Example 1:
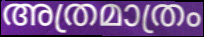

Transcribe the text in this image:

അത്രമാത്രം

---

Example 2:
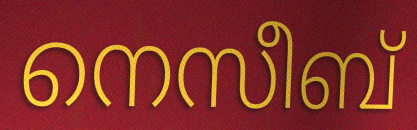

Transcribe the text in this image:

നെസീബ്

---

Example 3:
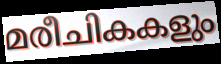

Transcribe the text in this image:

മരീചികകളും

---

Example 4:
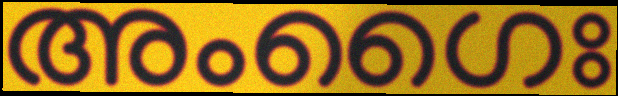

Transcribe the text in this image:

അംഗൈഃ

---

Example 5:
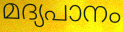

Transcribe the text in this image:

മദ്യപാനം